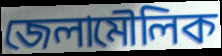
জেলামৌলিক